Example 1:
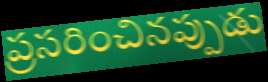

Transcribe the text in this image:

ప్రసరించినప్పుడు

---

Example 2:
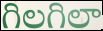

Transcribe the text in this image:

గిలగిలా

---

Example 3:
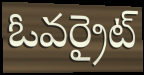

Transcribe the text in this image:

ఓవర్రైట్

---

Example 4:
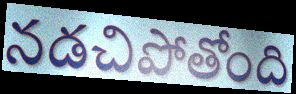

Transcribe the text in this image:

నడచిపోతోంది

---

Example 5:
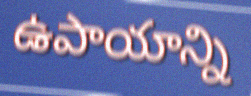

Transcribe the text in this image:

ఉపాయాన్ని